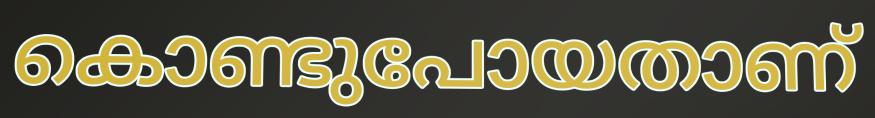
കൊണ്ടുപോയതാണ്